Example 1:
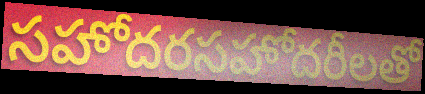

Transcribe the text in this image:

సహోదరసహోదరీలతో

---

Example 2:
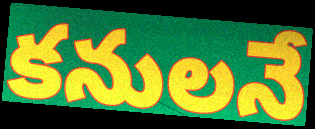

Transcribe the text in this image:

కనులనే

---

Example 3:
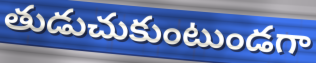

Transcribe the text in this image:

తుడుచుకుంటుండగా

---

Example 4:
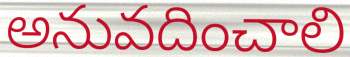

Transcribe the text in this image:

అనువదించాలి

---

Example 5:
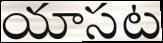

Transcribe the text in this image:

యాసట